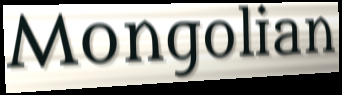
Mongolian